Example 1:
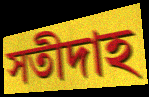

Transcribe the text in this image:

সতীদাহ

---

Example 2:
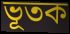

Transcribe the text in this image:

ভূতক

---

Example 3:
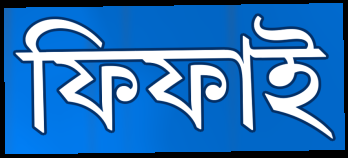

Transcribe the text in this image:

ফিফাই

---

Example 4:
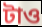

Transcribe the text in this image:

টাও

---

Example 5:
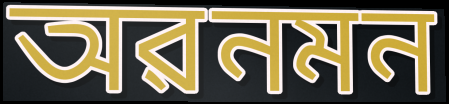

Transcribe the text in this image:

অৱনমন